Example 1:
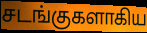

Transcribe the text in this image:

சடங்குகளாகிய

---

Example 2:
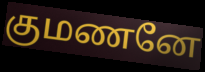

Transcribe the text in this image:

குமணனே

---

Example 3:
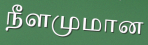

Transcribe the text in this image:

நீளமுமான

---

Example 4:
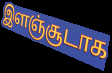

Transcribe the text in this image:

இளஞ்சூடாக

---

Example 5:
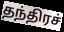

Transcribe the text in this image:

தந்திரச்